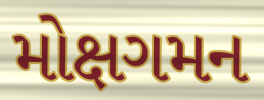
મોક્ષગમન